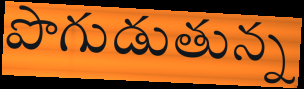
పొగుడుతున్న